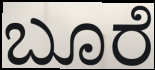
ಬೂರೆ